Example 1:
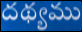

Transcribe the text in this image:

దథ్యము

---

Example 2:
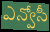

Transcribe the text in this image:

ఎన్వోసీ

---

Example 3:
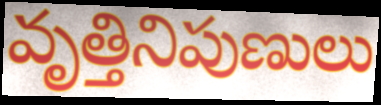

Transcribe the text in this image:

వృత్తినిపుణులు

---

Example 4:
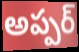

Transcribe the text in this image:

అప్పర్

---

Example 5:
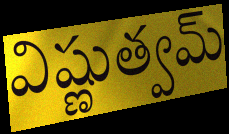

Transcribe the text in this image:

విష్ణుత్వమ్